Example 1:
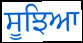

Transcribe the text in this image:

ਸੂਝਿਆ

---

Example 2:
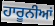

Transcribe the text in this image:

ਹਾਰੂਨੀਆਂ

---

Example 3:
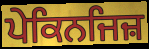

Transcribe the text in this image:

ਪੇਕਿਨਜਿਜ਼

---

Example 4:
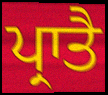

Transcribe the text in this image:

ਪ੍ਰਾਤੈ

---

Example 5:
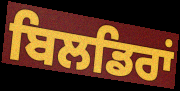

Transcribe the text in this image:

ਬਿਲਡਿਰਾਂ